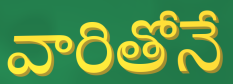
వారితోనే